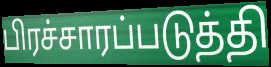
பிரச்சாரப்படுத்தி